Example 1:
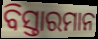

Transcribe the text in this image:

ବିସ୍ତାରମାନ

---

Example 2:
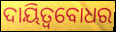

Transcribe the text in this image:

ଦାୟିତ୍ବବୋଧର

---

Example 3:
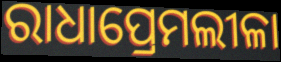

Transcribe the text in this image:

ରାଧାପ୍ରେମଲୀଳା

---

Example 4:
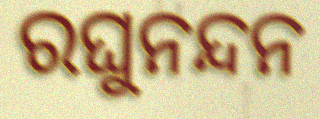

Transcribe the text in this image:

ରଘୁନନ୍ଦନ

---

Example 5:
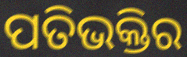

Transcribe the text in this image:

ପତିଭକ୍ତିର